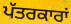
ਪੱਤਰਕਾਰਾਂ